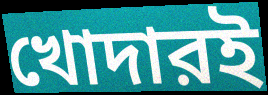
খোদারই